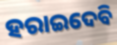
ହରାଇଦେବି